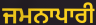
ਜਮਨਾਪਾਰੀ